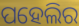
ପହେଲିର